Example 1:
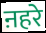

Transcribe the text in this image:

ऩहरे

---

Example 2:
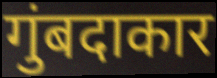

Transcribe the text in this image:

गुंबदाकार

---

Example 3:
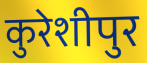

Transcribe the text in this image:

कुरेशीपुर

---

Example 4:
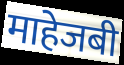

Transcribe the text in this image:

माहेजबी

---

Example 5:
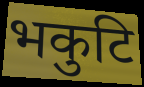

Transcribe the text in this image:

भकुटि